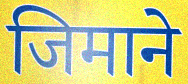
जिमाने